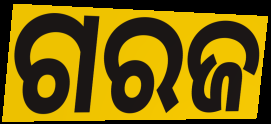
ଗରଜ